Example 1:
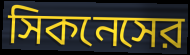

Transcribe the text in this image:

সিকনেসের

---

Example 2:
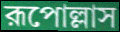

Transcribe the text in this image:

রূপোল্লাস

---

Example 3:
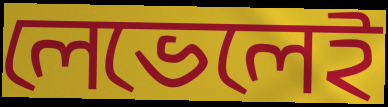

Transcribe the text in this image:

লেভেলেই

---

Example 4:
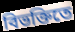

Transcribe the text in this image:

বিভক্তিতে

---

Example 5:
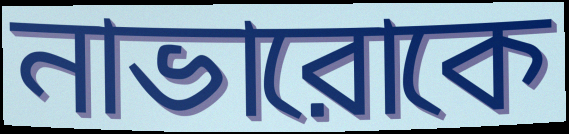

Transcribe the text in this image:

নাভারোকে